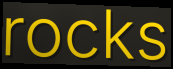
rocks